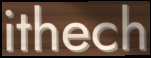
ithech